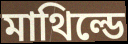
মাথিল্ডে